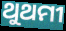
ଥୁଥମୀ